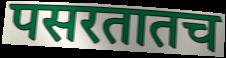
पसरतातच